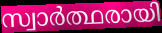
സ്വാർത്ഥരായി